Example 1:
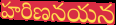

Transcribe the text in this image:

హరిణనయన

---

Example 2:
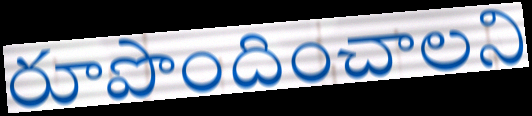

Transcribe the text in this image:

రూపొందించాలని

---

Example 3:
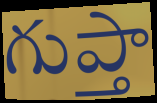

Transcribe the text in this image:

గుప్తా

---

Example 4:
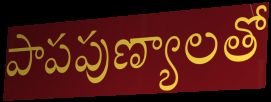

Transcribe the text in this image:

పాపపుణ్యాలతో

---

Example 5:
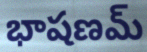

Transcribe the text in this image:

భాషణమ్